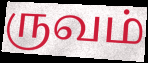
ருவம்